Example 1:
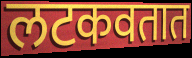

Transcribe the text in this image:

लटकवतात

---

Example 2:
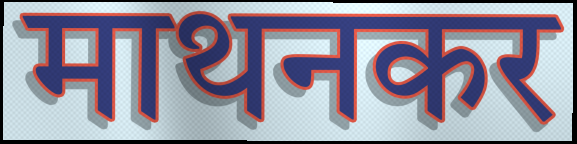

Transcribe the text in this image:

माथनकर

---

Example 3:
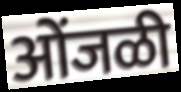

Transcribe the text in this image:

ओंजळी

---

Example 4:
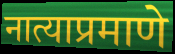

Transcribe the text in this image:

नात्याप्रमाणे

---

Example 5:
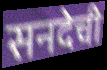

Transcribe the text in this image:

सनदेची